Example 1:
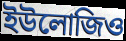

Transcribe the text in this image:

ইউলোজিও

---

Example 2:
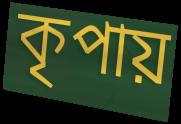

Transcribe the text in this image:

কৃপায়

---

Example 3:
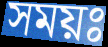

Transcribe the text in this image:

সময়ঃ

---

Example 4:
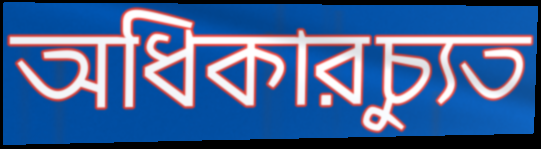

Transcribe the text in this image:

অধিকারচ্যুত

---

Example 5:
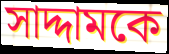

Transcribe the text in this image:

সাদ্দামকে